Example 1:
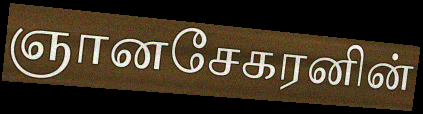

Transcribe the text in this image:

ஞானசேகரனின்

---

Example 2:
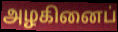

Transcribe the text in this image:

அழகினைப்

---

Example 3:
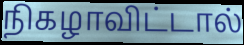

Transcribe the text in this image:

நிகழாவிட்டால்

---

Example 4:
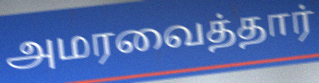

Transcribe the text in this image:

அமரவைத்தார்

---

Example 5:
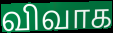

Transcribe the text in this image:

விவாக